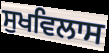
ਸੁਖਵਿਲਾਸ